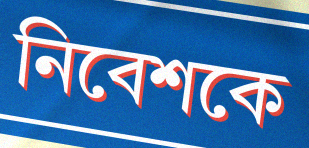
নিবেশকে